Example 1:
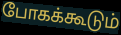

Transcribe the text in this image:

போகக்கூடும்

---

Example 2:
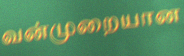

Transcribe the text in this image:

வன்முறையான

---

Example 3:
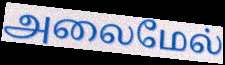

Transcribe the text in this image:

அலைமேல்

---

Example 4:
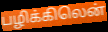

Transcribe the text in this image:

பழிக்கிலென்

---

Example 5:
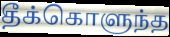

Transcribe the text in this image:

தீக்கொளுந்த